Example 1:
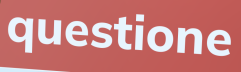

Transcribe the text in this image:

questione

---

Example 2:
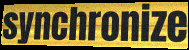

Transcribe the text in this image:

synchronize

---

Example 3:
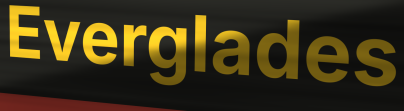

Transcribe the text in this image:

Everglades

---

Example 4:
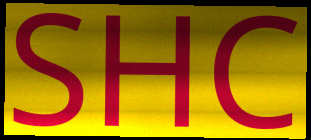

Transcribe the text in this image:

SHC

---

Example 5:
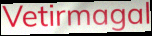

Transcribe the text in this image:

Vetirmagal